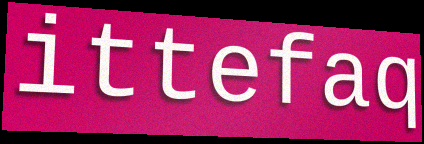
ittefaq